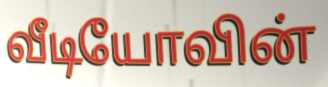
வீடியோவின்